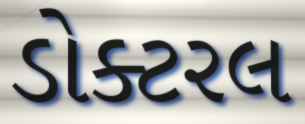
ડોક્ટરલ